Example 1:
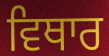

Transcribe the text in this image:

ਵਿਥਾਰ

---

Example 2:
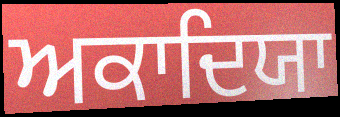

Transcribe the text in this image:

ਅਕਾਦਿਯਾ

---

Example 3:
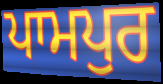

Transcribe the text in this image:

ਪਾਮਪੁਰ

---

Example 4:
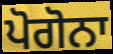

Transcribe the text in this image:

ਪੋਗੋਨਾ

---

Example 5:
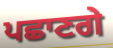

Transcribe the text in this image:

ਪਛਾਣਗੇ